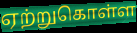
ஏற்றுகொள்ள